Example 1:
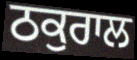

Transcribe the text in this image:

ਠਕੁਰਾਲ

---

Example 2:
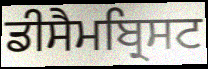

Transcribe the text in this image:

ਡੀਸੈਮਬ੍ਰਿਸਟ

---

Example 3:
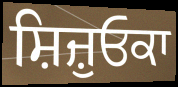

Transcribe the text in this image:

ਸ਼ਿਜ਼ੁਓਕਾ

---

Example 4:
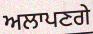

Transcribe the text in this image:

ਅਲਾਪਣਗੇ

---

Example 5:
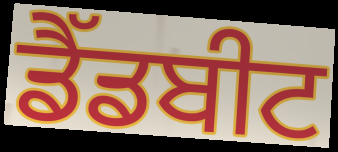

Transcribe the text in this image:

ਡੈੱਡਬੀਟ